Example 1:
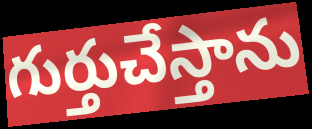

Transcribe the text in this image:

గుర్తుచేస్తాను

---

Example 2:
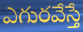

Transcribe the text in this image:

ఎగురవేస్తే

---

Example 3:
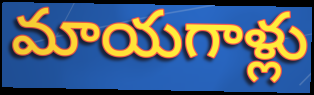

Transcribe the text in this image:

మాయగాళ్లు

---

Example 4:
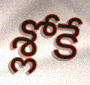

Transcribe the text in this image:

శ్లోకే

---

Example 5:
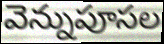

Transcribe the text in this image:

వెన్నుపూసల